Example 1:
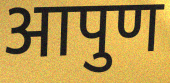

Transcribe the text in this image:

आपुण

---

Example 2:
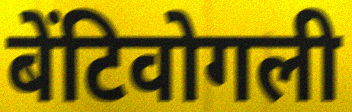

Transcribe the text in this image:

बेंटिवोगली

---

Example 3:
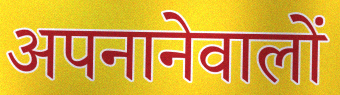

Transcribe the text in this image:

अपनानेवालों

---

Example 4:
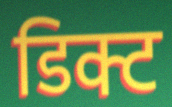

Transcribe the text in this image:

डिक्ट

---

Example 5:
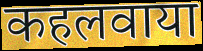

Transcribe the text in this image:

कहलवाया